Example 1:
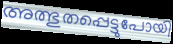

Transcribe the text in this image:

അത്ഭുതപ്പെട്ടുപോയി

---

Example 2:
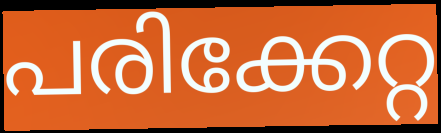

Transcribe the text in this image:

പരിക്കേറ്റ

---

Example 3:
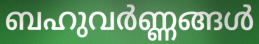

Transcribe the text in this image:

ബഹുവർണ്ണങ്ങൾ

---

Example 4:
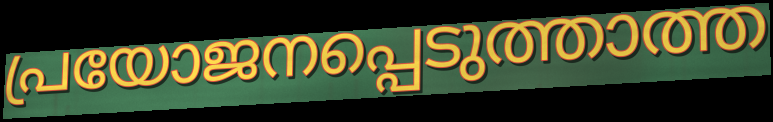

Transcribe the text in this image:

പ്രയോജനപ്പെടുത്താത്ത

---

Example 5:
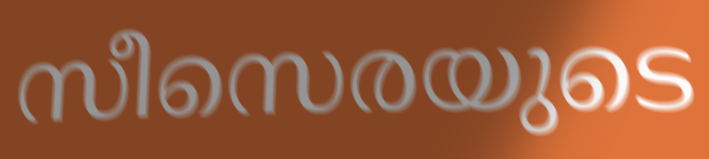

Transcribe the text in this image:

സീസെരയുടെ